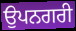
ਉਪਨਗਰੀ